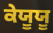
ਕੇਯੂਯੂ